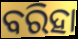
ବରିହା